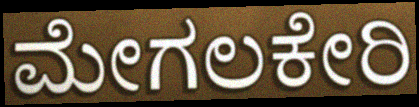
ಮೇಗಲಕೇರಿ